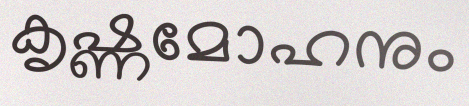
കൃഷ്ണമോഹനും